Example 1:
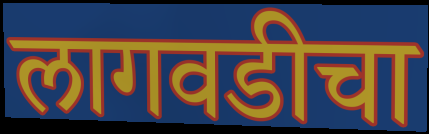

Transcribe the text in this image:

लागवडीचा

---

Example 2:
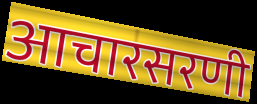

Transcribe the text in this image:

आचारसरणी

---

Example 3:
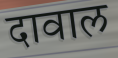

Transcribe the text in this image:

दावाल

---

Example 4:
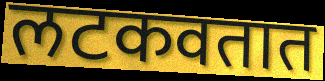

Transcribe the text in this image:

लटकवतात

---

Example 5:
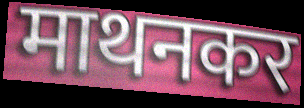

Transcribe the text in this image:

माथनकर